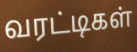
வரட்டிகள்